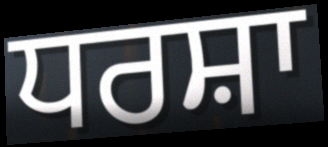
ਧਰਸ਼ਾ